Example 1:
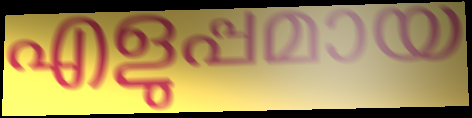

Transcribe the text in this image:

എളുപ്പമായ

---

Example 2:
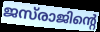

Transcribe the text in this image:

ജസ്‌രാജിന്റെ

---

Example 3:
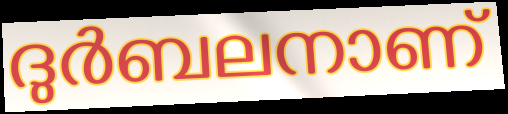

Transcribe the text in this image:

ദുർബലനാണ്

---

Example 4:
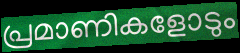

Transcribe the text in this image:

പ്രമാണികളോടും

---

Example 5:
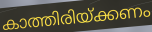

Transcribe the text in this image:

കാത്തിരിയ്ക്കണം